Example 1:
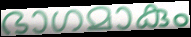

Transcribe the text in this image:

ഭാഗമാകും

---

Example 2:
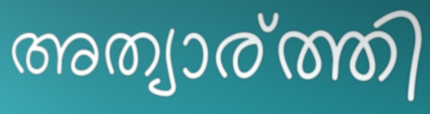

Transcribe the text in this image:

അത്യാര്ത്തി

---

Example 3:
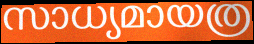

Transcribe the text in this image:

സാധ്യമായത്ര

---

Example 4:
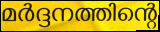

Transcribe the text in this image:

മർദ്ദനത്തിന്റെ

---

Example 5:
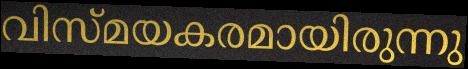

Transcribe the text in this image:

വിസ്മയകരമായിരുന്നു